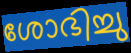
ശോഭിച്ചു